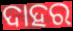
ଦାହର